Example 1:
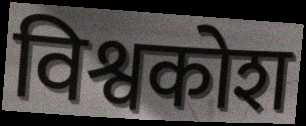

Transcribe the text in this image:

विश्वकोश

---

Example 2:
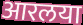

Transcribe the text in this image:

आरलया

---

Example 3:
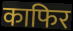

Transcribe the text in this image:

काफिर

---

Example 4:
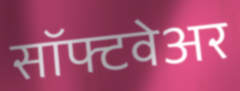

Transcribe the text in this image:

सॉफ्टवेअर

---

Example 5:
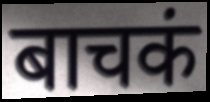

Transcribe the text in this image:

बाचकं